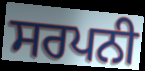
ਸਰਪਨੀ